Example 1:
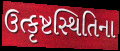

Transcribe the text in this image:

ઉત્કૃષ્ટસ્થિતિના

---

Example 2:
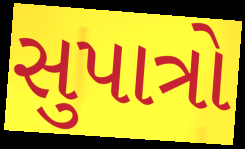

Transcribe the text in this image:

સુપાત્રો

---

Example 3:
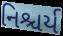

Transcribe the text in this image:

નિશ્ચર્ય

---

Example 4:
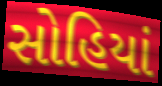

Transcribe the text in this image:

સોહિયાં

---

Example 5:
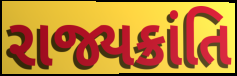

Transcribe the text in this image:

રાજ્યક્રાંતિ